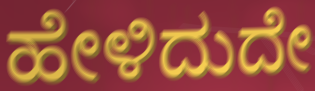
ಹೇಳಿದುದೇ